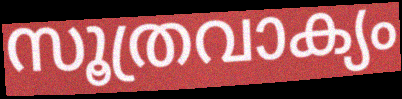
സൂത്രവാക്യം